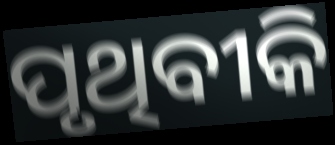
ପୃଥିବୀକି